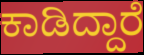
ಕಾಡಿದ್ದಾರೆ